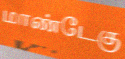
மாண்டேகு